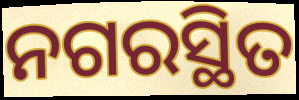
ନଗରସ୍ଥିତ